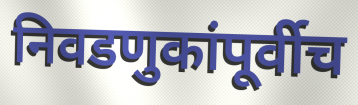
निवडणुकांपूर्वीच